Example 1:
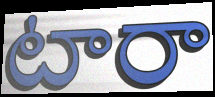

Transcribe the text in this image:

టారా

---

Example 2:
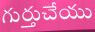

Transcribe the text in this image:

గుర్తుచేయు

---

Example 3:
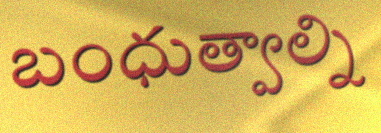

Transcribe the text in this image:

బంధుత్వాల్ని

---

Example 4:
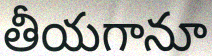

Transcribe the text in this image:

తీయగానూ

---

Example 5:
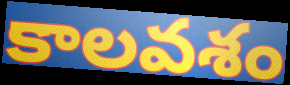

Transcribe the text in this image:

కాలవశం